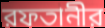
রফতানীর